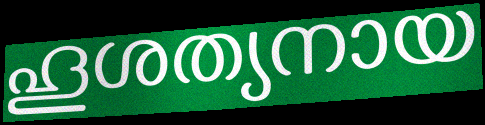
ഹൂശത്യനായ